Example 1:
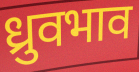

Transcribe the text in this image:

ध्रुवभाव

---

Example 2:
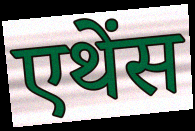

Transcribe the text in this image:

एथेंस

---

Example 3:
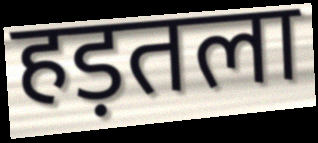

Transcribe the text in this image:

हड़तला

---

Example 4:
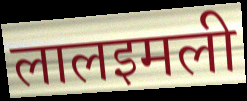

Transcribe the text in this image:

लालइमली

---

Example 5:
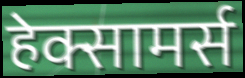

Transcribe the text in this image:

हेक्सामर्स